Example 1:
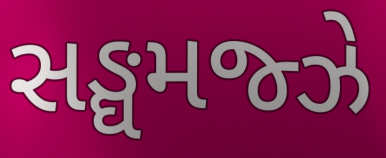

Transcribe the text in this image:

સઙ્ઘમજ્ઝે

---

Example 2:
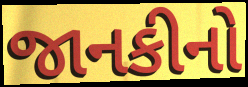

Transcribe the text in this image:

જાનકીનો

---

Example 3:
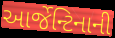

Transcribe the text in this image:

આર્જેન્ટિનાની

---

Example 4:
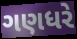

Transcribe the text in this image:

ગણધરે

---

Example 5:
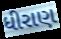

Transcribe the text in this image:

ધીરાણ